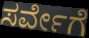
ಸರ್ವೇಗೆ